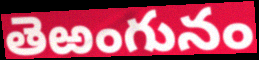
తెఱంగునం